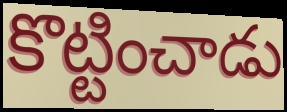
కొట్టించాడు